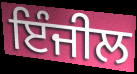
ਇੰਜੀਲ